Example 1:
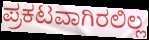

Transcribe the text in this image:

ಪ್ರಕಟವಾಗಿರಲಿಲ್ಲ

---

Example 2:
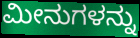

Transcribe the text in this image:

ಮೀನುಗಳನ್ನು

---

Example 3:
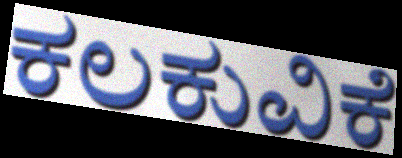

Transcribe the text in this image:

ಕಲಕುವಿಕೆ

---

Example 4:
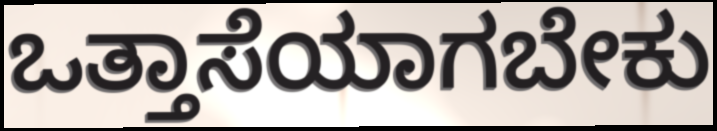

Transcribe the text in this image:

ಒತ್ತಾಸೆಯಾಗಬೇಕು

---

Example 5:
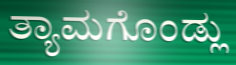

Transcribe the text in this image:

ತ್ಯಾಮಗೊಂಡ್ಲು